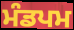
ਮੰਡਪਮ